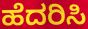
ಹೆದರಿಸಿ